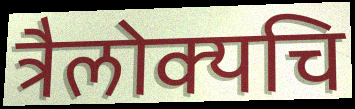
त्रैलोक्यचि